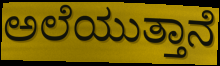
ಅಲೆಯುತ್ತಾನೆ